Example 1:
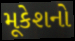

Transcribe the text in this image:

મૂકેશનો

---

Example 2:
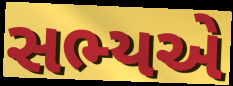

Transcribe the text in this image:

સભ્યએ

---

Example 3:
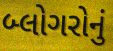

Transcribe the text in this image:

બ્લોગરોનું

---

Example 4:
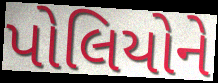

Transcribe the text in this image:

પોલિયોને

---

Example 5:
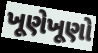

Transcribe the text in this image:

ખૂણેખૂણો